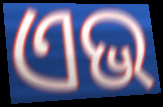
ଏଭ